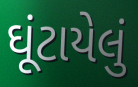
ઘૂંટાયેલું